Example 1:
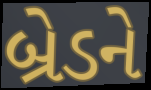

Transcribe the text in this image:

બ્રેડને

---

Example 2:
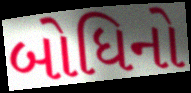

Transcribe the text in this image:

બોધિનો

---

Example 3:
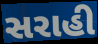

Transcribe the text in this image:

સરાહી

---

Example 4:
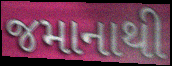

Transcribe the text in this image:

જમાનાથી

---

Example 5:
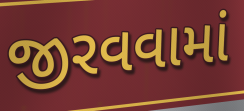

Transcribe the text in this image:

જીરવવામાં